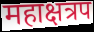
महाक्षत्रप